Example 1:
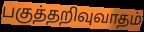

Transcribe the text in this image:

பகுத்தறிவுவாதம்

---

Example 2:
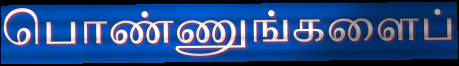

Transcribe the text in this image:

பொண்ணுங்களைப்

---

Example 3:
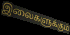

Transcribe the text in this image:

இலைகளுக்கும்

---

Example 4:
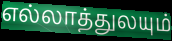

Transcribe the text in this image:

எல்லாத்துலயும்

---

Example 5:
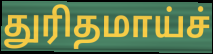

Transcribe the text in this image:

துரிதமாய்ச்